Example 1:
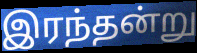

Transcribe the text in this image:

இரந்தன்று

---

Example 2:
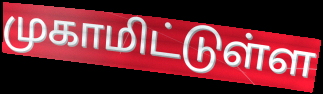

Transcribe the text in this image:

முகாமிட்டுள்ள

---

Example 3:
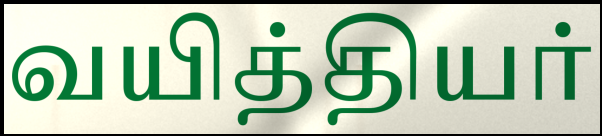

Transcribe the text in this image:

வயித்தியர்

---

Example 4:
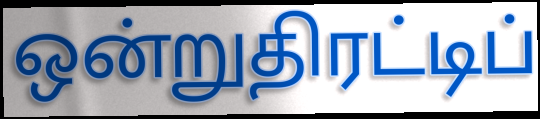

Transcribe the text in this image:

ஒன்றுதிரட்டிப்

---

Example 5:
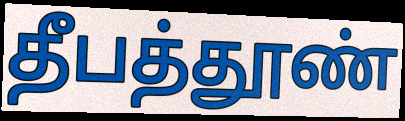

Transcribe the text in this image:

தீபத்தூண்